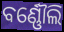
ବର୍ଣ୍ଣୌଲି